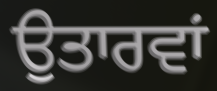
ਉਤਾਰਵਾਂ